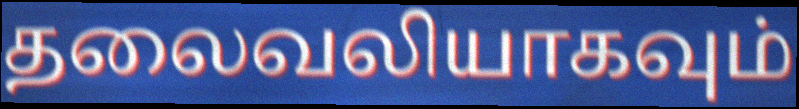
தலைவலியாகவும்